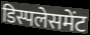
डिस्पलेसमेंट